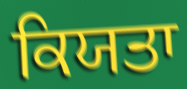
ਕਿਯਤਾ